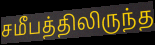
சமீபத்திலிருந்த